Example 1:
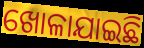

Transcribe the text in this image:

ଖୋଳାଯାଇଛି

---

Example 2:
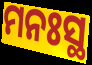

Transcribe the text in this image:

ମନଃସ୍ଥ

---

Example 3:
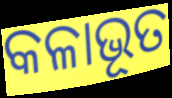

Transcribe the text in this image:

କଳାଭୂତ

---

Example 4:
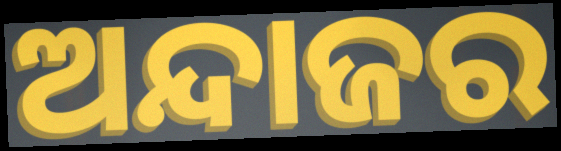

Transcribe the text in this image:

ଅନ୍ଦାଜର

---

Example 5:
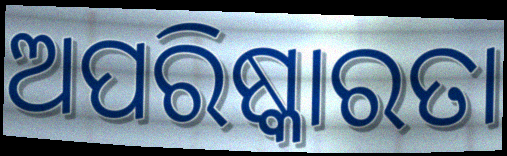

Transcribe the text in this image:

ଅପରିଷ୍କାରତା